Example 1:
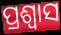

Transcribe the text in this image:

ପ୍ରଶ୍ୱାସ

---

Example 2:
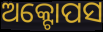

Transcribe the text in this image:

ଅକ୍ଟୋପସ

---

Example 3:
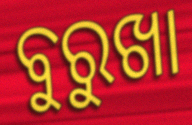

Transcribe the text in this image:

ବୁରୁଖା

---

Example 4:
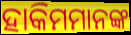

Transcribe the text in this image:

ହାକିମମାନଙ୍କ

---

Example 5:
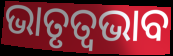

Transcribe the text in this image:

ଭାତୃତ୍ବଭାବ